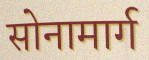
सोनामार्ग